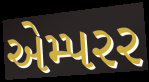
એમ્પરર